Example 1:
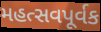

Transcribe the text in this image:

મહત્સવપૂર્વક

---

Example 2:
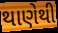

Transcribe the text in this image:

થાણેથી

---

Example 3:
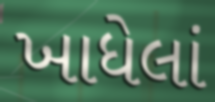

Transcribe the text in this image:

ખાધેલાં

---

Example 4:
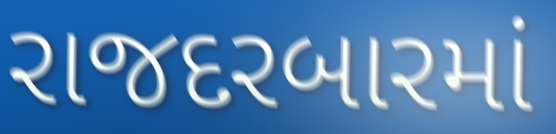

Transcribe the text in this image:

રાજદરબારમાં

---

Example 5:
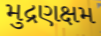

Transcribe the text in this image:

મુદ્રણક્ષમ